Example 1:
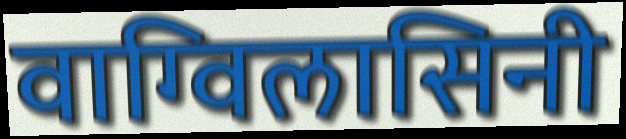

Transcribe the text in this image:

वाग्विलासिनी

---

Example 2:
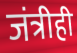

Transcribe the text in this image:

जंत्रीही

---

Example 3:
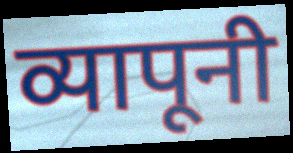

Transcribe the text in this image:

व्यापूनी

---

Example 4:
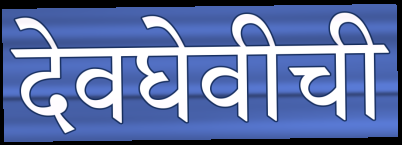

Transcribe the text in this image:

देवघेवीची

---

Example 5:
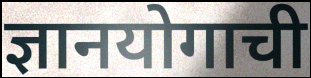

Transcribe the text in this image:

ज्ञानयोगाची